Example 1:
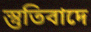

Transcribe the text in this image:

স্তুতিবাদে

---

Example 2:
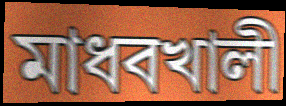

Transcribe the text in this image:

মাধবখালী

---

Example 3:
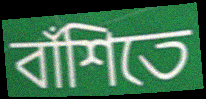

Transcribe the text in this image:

বাঁশিতে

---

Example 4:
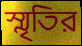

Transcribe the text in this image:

স্মৃতির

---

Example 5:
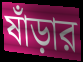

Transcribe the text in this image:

ষাঁড়ার